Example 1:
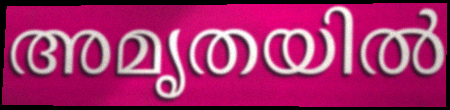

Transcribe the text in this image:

അമൃതയിൽ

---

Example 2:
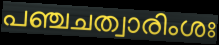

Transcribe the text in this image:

പഞ്ചചത്വാരിംശഃ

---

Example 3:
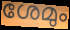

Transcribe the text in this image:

ശേമും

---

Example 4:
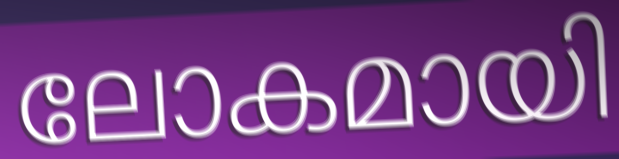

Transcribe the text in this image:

ലോകമായി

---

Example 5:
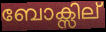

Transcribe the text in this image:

ബോക്സില്